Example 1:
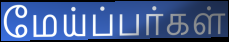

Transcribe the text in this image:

மேய்ப்பர்கள்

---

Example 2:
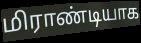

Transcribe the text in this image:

மிராண்டியாக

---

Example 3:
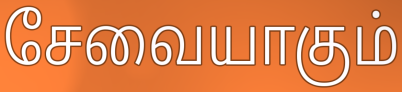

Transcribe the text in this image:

சேவையாகும்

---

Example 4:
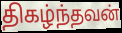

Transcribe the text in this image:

திகழ்ந்தவன்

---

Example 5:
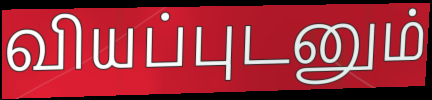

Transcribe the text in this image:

வியப்புடனும்